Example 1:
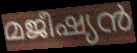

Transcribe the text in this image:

മജീഷ്യൻ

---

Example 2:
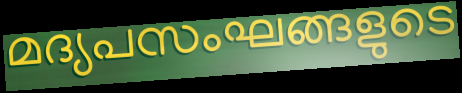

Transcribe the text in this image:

മദ്യപസംഘങ്ങളുടെ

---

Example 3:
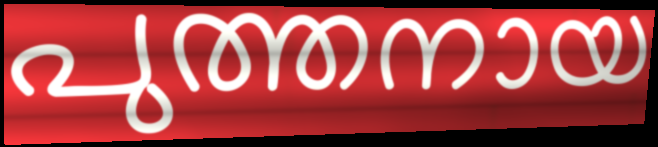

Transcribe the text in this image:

പുത്തനായ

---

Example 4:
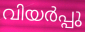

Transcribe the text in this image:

വിയർപ്പു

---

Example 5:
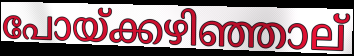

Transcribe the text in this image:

പോയ്ക്കഴിഞ്ഞാല്